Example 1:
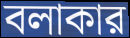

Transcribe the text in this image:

বলাকার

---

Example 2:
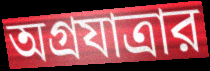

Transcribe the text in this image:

অগ্রযাত্রার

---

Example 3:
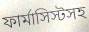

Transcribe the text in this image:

ফার্মাসিস্টসহ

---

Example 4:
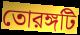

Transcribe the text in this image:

তোরঙ্গটি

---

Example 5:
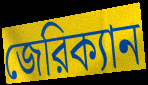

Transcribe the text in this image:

জেরিক্যান